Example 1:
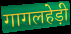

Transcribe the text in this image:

गागलहेड़ी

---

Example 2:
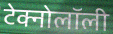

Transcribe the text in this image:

टेक्नोलॉली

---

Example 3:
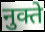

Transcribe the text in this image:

नुक्ते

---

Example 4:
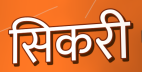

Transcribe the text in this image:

सिकरी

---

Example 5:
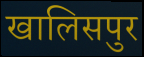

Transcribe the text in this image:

खालिसपुर